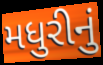
મધુરીનું